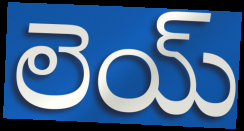
లెయ్